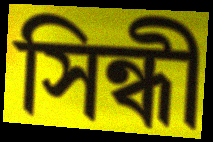
সিন্ধী